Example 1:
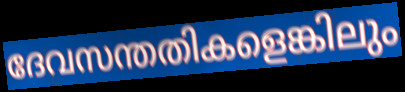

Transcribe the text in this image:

ദേവസന്തതികളെങ്കിലും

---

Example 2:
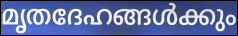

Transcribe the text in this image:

മൃതദേഹങ്ങൾക്കും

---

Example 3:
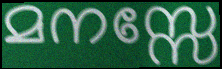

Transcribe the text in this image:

മനസ്സേ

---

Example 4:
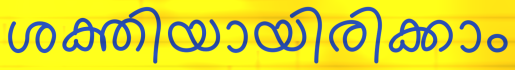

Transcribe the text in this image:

ശക്തിയായിരിക്കാം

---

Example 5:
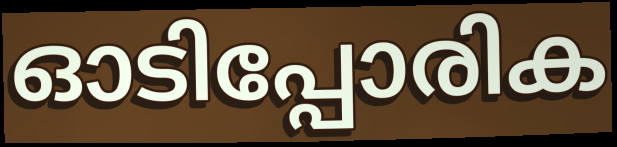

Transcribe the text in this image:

ഓടിപ്പോരിക